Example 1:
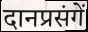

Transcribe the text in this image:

दानप्रसंगें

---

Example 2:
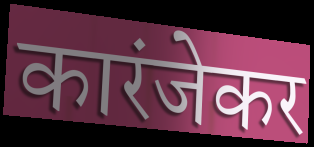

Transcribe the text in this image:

कारंजेकर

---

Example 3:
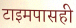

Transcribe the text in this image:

टाइमपासही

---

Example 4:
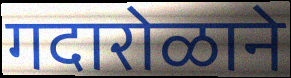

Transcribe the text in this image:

गदारोळाने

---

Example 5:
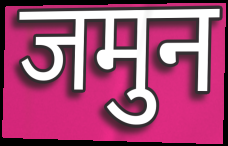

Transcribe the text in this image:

जमुन